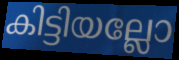
കിട്ടിയല്ലോ